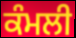
ਕੰਮਲੀ